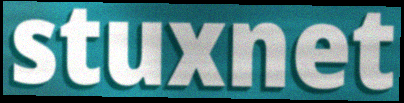
stuxnet